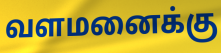
வளமனைக்கு